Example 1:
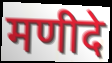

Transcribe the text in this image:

मणीदे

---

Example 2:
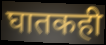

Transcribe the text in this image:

घातकही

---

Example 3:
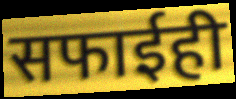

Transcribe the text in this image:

सफाईही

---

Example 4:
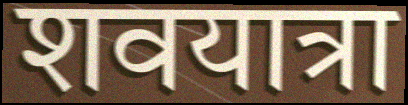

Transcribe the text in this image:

शवयात्रा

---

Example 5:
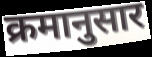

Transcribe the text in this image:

क्रमानुसार